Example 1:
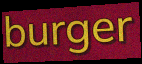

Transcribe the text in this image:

burger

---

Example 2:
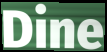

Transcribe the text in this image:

Dine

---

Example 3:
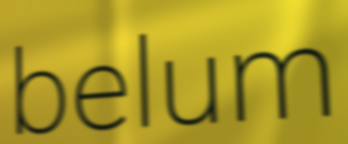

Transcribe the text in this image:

belum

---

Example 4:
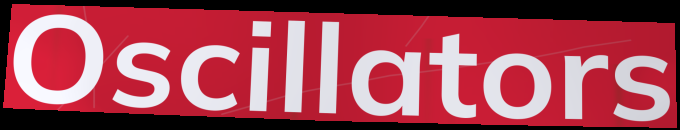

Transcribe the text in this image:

Oscillators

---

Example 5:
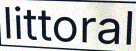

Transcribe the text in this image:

littoral